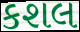
કશલ